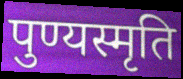
पुण्यस्मृति